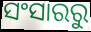
ସଂସାରରୁ